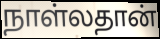
நாள்லதான்